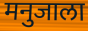
मनुजाला